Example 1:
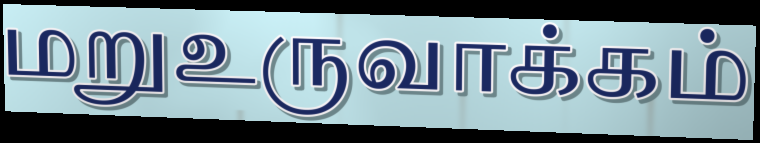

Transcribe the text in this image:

மறுஉருவாக்கம்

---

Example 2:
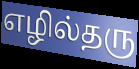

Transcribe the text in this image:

எழில்தரு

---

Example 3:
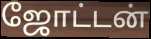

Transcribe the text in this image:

ஜோட்டன்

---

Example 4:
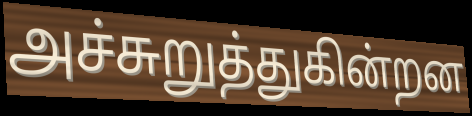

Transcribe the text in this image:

அச்சுறுத்துகின்றன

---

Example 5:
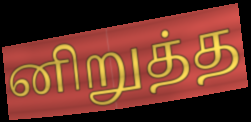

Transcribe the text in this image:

னிறுத்த